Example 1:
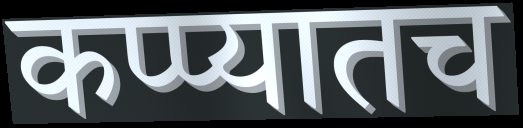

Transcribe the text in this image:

कप्प्यातच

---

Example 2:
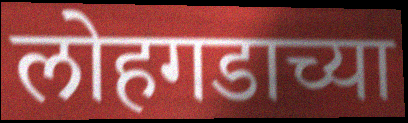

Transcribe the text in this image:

लोहगडाच्या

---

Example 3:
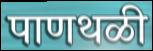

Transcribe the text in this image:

पाणथळी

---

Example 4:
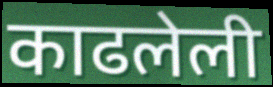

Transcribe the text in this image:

काढलेली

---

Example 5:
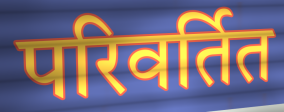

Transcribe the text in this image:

परिवर्तित